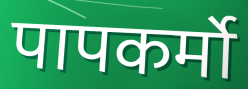
पापकर्मो